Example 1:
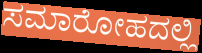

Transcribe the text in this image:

ಸಮಾರೋಹದಲ್ಲಿ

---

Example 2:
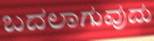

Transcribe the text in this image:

ಬದಲಾಗುವುದು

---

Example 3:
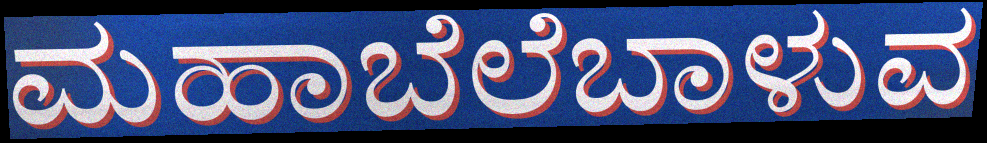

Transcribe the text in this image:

ಮಹಾಬೆಲೆಬಾಳುವ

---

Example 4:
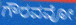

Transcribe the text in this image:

ಗೌರವವೋ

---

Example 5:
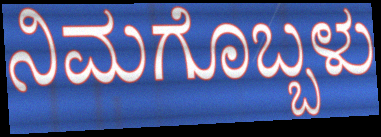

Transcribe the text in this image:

ನಿಮಗೊಬ್ಬಳು